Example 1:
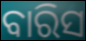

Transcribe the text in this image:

ବାରିସ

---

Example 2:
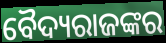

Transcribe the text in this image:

ବୈଦ୍ୟରାଜଙ୍କର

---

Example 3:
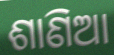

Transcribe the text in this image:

ଶାଣିଆ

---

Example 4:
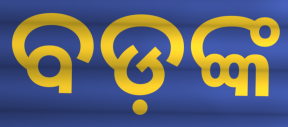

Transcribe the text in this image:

ବଡ଼ଙ୍କ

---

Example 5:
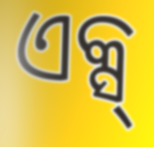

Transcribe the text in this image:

ଏକ୍ସ୍